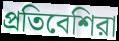
প্রতিবেশিরা